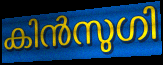
കിൻസുഗി